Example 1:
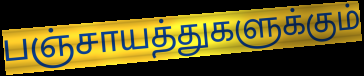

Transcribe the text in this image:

பஞ்சாயத்துகளுக்கும்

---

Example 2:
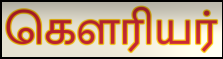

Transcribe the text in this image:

கௌரியர்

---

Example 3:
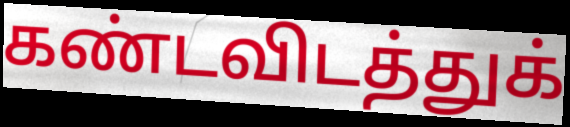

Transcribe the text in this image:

கண்டவிடத்துக்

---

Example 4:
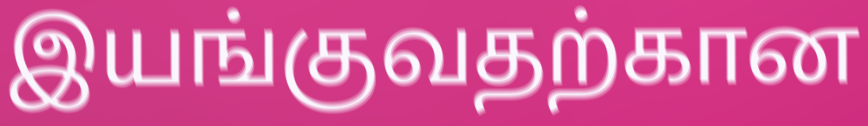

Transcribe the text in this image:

இயங்குவதற்கான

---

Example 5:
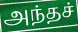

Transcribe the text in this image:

அந்தச்